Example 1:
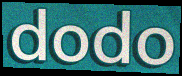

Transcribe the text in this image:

dodo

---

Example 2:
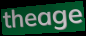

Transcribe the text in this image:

theage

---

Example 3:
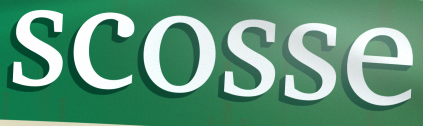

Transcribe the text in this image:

scosse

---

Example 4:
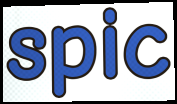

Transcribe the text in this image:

spic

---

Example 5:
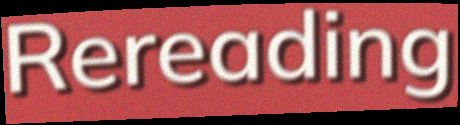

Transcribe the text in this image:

Rereading